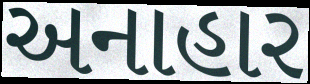
અનાહાર